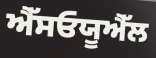
ਐੱਸਓਯੂਐੱਲ